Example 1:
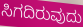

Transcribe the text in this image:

ಸಿಗದಿರುವುದು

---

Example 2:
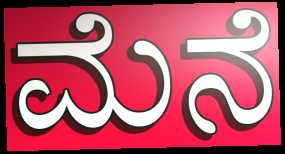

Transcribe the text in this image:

ಮೆನೆ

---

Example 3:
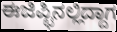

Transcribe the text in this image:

ಈಜಿಪ್ಟಿನಲ್ಲಿದ್ದಾಗ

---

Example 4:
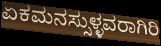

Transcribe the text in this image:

ಏಕಮನಸ್ಸುಳ್ಳವರಾಗಿರಿ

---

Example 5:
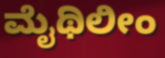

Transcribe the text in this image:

ಮೈಥಿಲೀಂ